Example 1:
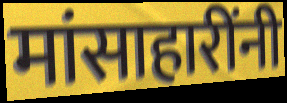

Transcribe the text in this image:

मांसाहारींनी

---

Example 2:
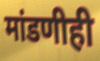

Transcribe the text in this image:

मांडणीही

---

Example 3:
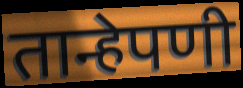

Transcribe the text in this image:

तान्हेपणी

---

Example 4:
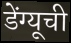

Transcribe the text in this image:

डेंग्यूची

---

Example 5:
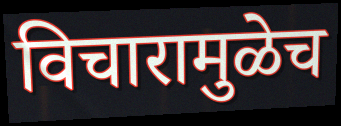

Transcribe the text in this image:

विचारामुळेच